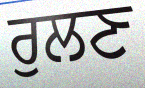
ਰੁਲਣ